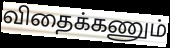
விதைக்கணும்